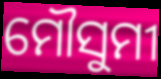
ମୌସୁମୀ